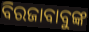
ବିରଜାବାବୁଙ୍କ